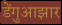
डेंगुआझार